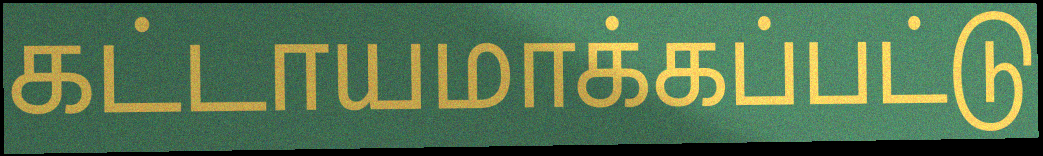
கட்டாயமாக்கப்பட்டு